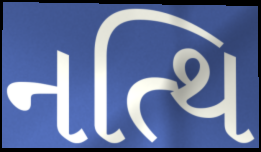
નત્થિ